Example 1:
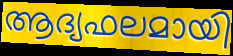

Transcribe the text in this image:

ആദ്യഫലമായി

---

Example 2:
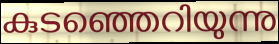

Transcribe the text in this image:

കുടഞ്ഞെറിയുന്നു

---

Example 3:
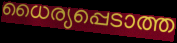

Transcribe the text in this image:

ധൈര്യപ്പെടാത്ത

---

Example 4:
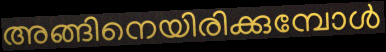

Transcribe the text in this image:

അങ്ങിനെയിരിക്കുമ്പോൾ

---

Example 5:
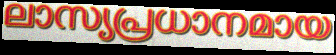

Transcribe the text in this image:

ലാസ്യപ്രധാനമായ